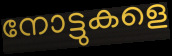
നോട്ടുകളെ